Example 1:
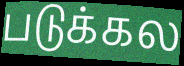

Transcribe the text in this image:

படுக்கல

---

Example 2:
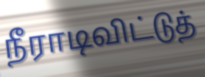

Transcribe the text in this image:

நீராடிவிட்டுத்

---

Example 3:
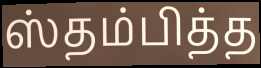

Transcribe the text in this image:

ஸ்தம்பித்த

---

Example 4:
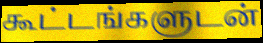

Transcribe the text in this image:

கூட்டங்களுடன்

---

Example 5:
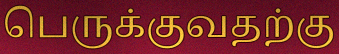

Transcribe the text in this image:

பெருக்குவதற்கு